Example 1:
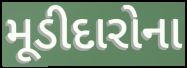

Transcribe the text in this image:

મૂડીદારોના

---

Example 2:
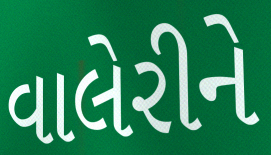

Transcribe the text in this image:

વાલેરીને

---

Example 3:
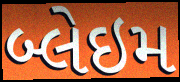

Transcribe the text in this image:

બ્લેઇમ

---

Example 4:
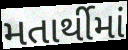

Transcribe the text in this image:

મતાર્થીમાં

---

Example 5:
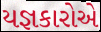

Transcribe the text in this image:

યજ્ઞકારોએ